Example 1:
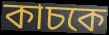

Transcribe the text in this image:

কাচকে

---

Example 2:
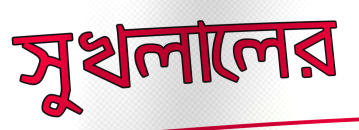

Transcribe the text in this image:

সুখলালের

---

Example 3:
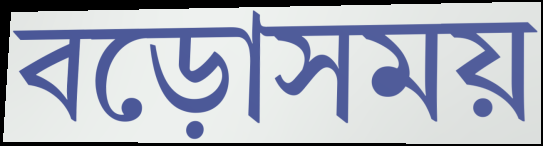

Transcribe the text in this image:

বড়োসময়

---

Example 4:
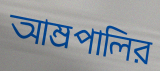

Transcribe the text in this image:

আম্রপালির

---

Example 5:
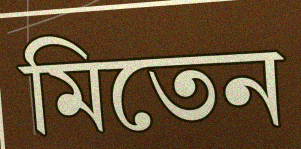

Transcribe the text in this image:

মিতেন